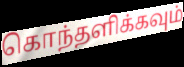
கொந்தளிக்கவும்